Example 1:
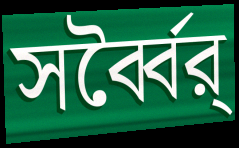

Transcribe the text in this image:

সর্ব্বৈর্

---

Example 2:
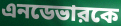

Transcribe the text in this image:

এনডেভারকে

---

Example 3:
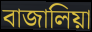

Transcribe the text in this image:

বাজালিয়া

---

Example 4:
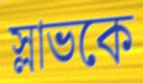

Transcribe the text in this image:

স্লাভকে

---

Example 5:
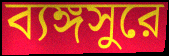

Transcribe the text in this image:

ব্যঙ্গসুরে